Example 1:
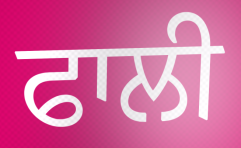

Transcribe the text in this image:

ਫਾਲੀ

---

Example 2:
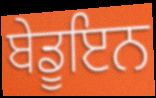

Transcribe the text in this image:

ਬੇਡੂਇਨ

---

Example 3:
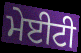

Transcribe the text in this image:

ਮੇਈਟੀ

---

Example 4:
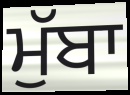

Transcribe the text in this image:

ਮੁੱਬਾ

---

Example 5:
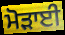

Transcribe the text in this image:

ਮੋੜਾਈ